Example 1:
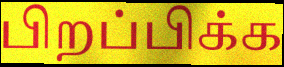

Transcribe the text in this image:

பிறப்பிக்க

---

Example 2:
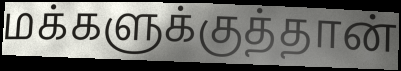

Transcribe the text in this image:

மக்களுக்குத்தான்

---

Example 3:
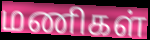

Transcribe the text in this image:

மணிகள்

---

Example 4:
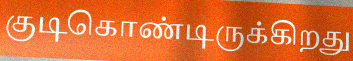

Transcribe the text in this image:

குடிகொண்டிருக்கிறது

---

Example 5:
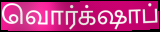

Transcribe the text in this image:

வொர்க்‌ஷாப்